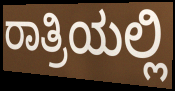
ರಾತ್ರಿಯಲ್ಲಿ